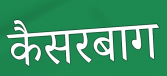
कैसरबाग